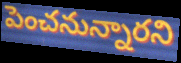
పెంచనున్నారని